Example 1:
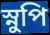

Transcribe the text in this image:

স্নুপি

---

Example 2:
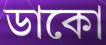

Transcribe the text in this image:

ডাকো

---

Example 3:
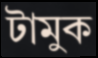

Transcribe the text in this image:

টামুক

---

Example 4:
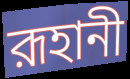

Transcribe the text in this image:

রূহানী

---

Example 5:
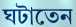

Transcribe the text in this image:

ঘটাতেন